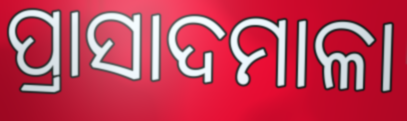
ପ୍ରାସାଦମାଳା